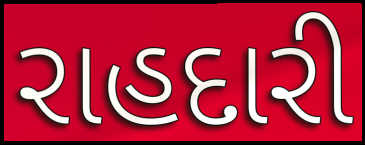
રાહદારી